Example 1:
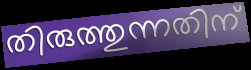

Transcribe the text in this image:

തിരുത്തുന്നതിന്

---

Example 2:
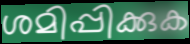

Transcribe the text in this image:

ശമിപ്പിക്കുക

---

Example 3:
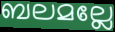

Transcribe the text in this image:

ബലമല്ലേ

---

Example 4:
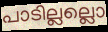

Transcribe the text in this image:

പാടില്ലല്ലൊ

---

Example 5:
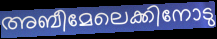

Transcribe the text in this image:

അബീമേലെക്കിനോടു